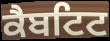
ਕੈਬਟਿਟ